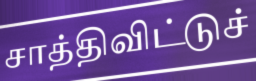
சாத்திவிட்டுச்